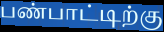
பண்பாட்டிற்கு